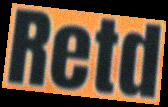
Retd